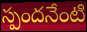
స్పందనేంటి